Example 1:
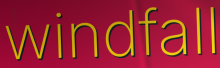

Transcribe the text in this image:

windfall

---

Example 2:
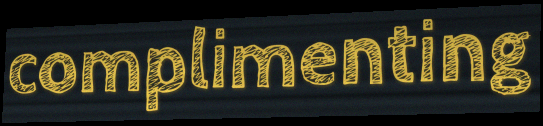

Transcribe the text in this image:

complimenting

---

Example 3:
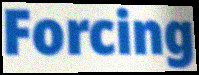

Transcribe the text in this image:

Forcing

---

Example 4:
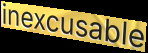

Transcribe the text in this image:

inexcusable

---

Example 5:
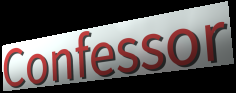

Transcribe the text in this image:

Confessor